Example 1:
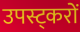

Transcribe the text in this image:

उपस्ट्करों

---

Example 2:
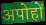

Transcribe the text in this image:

अपोहों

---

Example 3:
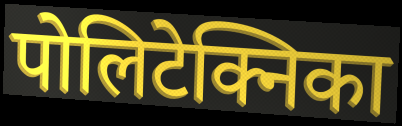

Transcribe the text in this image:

पोलिटेक्निका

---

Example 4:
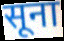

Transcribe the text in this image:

सूना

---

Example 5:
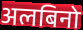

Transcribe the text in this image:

अलबिनो